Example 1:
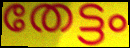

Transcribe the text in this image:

തേട്ടം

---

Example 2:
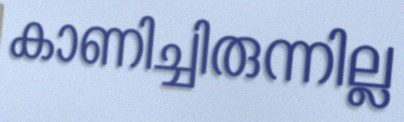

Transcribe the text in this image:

കാണിച്ചിരുന്നില്ല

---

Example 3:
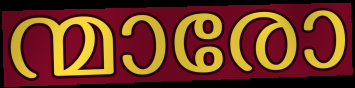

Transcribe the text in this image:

ന്മാരോ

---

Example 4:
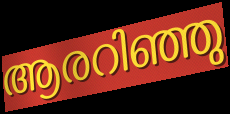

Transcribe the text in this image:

ആരറിഞ്ഞു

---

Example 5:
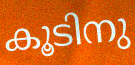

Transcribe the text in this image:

കൂടിനു